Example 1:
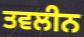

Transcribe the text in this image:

ਤਵਲੀਨ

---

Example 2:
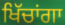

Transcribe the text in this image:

ਖਿੱਚਾਂਗਾ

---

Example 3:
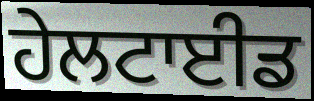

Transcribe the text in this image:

ਹੇਲਟਾਈਡ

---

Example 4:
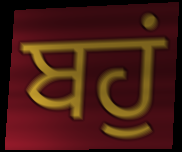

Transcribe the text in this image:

ਬਹੁਂ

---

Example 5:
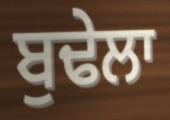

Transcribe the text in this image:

ਬੁਢੇਲਾ